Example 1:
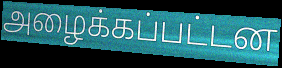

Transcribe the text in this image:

அழைக்கப்பட்டன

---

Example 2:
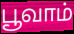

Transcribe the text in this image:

பூவாம்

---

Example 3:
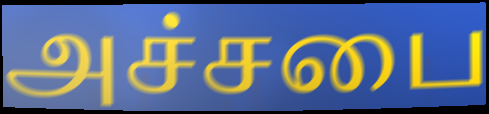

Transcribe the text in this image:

அச்சபை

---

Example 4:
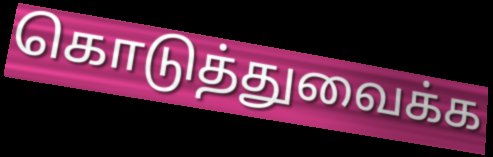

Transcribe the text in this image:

கொடுத்துவைக்க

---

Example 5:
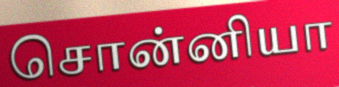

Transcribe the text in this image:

சொன்னியா